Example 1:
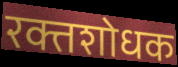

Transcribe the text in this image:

रक्तशोधक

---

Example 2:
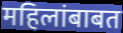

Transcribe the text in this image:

महिलांबाबत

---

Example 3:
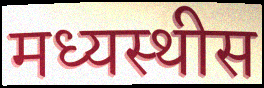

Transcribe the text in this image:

मध्यस्थीस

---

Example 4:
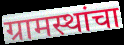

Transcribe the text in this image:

ग्रामस्थांचा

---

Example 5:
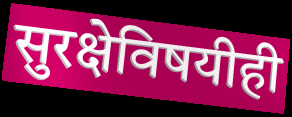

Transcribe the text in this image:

सुरक्षेविषयीही